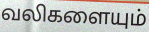
வலிகளையும்